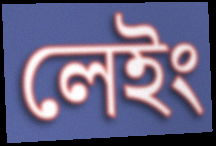
লেইং